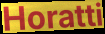
Horatti